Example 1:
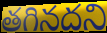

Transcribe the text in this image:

తగినదని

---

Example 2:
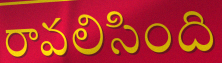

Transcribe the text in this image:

రావలిసింది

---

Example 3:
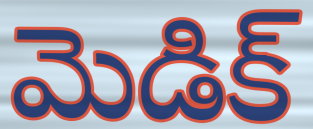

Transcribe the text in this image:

మెడిక్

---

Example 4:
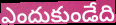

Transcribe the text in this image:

ఎందుకుండేది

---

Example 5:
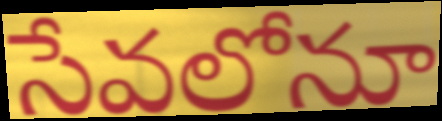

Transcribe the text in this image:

సేవలోనూ